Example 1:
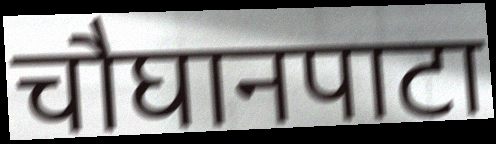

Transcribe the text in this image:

चौघानपाटा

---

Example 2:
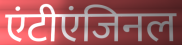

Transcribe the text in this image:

एंटीएंजिनल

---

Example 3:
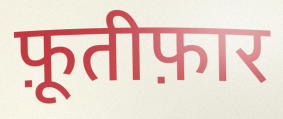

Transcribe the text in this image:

फ़ूतीफ़ार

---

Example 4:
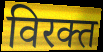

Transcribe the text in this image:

विरक्त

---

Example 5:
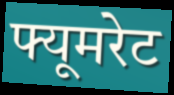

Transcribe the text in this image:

फ्यूमरेट